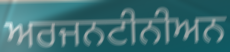
ਅਰਜਨਟੀਨੀਅਨ